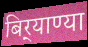
बिर्याण्या